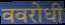
ववरोधी